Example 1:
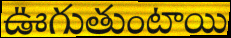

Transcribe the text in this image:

ఊగుతుంటాయి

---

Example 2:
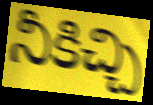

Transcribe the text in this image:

నీకిచ్చి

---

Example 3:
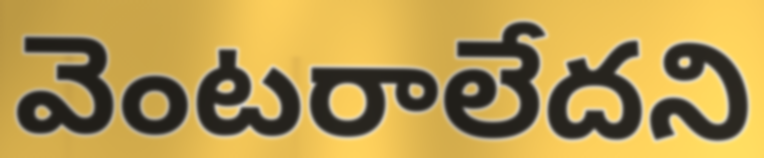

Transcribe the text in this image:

వెంటరాలేదని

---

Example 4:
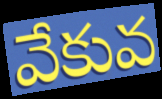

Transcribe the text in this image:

వేకువ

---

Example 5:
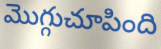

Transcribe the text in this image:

మొగ్గుచూపింది